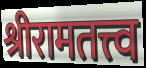
श्रीरामतत्त्व